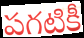
పగటికీ